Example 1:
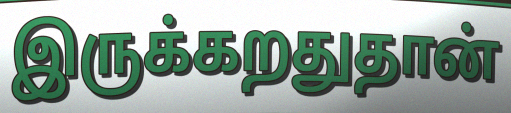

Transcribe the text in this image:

இருக்கறதுதான்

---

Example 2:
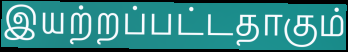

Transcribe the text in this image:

இயற்றப்பட்டதாகும்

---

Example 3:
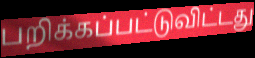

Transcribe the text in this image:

பறிக்கப்பட்டுவிட்டது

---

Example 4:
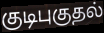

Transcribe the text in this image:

குடிபுகுதல்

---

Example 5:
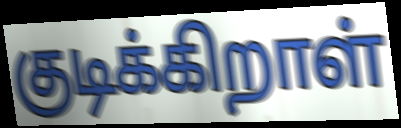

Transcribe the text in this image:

குடிக்கிறாள்